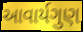
આવાર્યગુણ